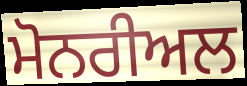
ਮੋਨਰੀਅਲ